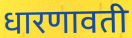
धारणावती